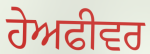
ਹੇਅਫੀਵਰ